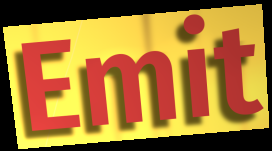
Emit